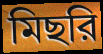
মিছরি